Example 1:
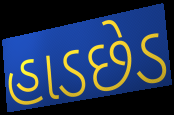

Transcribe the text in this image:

હાડછેડ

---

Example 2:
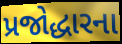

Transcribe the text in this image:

પ્રજોદ્ધારના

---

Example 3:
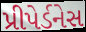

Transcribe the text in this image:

પ્રીપેર્ડનેસ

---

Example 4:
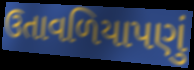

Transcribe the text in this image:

ઉતાવળિયાપણું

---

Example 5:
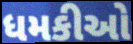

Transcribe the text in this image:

ધમકીઓ